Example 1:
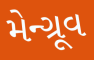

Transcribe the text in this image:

મેન્ગ્રૂવ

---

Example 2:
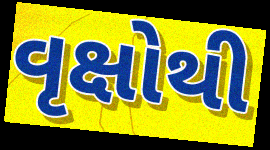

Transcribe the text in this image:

વૃક્ષોથી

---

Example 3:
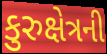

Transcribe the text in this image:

કુરુક્ષેત્રની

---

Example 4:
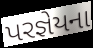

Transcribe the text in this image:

પરજ્ઞેયના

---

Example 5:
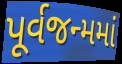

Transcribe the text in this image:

પૂર્વજન્મમાં